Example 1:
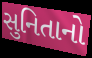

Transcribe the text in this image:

સુનિતાનો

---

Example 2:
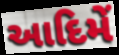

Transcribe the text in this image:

આદિમેં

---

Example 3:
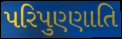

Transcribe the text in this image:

પરિપુણ્ણાતિ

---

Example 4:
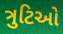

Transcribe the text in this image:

ત્રુટિઓ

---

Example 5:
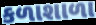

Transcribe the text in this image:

કળાશાળા